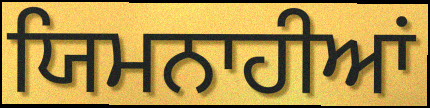
ਯਿਮਨਾਹੀਆਂ